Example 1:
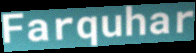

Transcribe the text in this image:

Farquhar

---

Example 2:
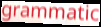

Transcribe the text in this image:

grammatic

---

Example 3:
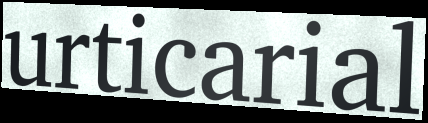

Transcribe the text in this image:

urticarial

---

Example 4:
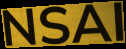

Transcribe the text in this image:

NSAI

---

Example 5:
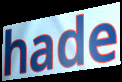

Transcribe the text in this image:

hade